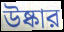
উষ্কার